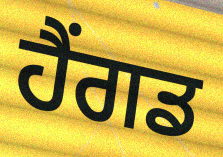
ਹੈਂਗਡ